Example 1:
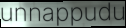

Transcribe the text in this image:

unnappudu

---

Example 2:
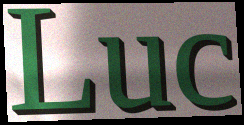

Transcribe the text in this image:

Luc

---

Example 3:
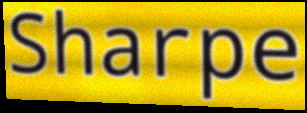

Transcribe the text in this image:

Sharpe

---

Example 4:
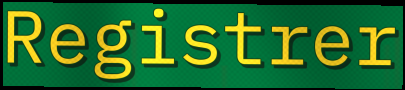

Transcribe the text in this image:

Registrer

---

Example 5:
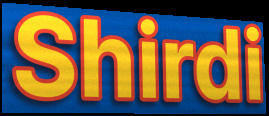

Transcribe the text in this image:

Shirdi